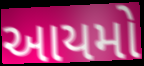
આયમો